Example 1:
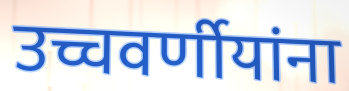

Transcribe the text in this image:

उच्चवर्णीयांना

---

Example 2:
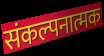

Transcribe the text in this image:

संकल्पनात्मक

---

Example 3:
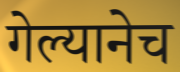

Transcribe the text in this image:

गेल्यानेच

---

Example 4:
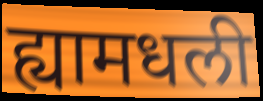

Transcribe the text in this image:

ह्यामधली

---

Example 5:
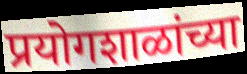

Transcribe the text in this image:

प्रयोगशाळांच्या